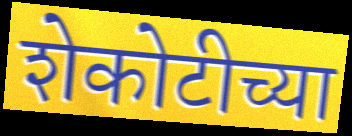
शेकोटीच्या